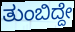
ತುಂಬಿದ್ದೇ